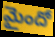
మైందో